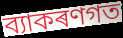
ব্যাকৰণগত